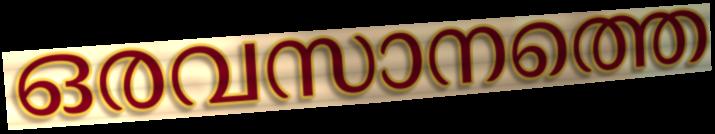
ഒരവസാനത്തെ